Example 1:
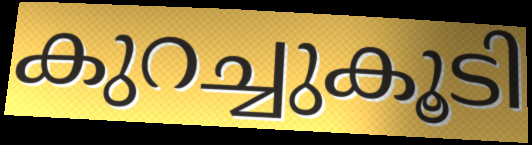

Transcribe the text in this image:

കുറച്ചുകൂടി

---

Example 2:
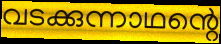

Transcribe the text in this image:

വടക്കുന്നാഥന്റെ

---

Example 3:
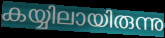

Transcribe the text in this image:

കയ്യിലായിരുന്നു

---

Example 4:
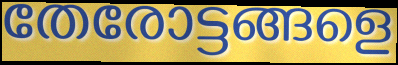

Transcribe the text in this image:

തേരോട്ടങ്ങളെ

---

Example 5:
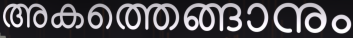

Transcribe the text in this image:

അകത്തെങ്ങാനും